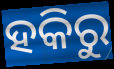
ହକିରୁ